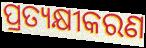
ପ୍ରତ୍ୟକ୍ଷୀକରଣ